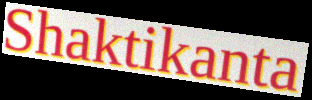
Shaktikanta